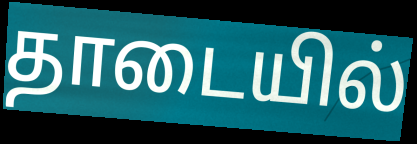
தாடையில்